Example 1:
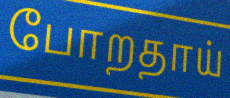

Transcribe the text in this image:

போறதாய்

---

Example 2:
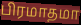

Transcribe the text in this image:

பிரமாதமா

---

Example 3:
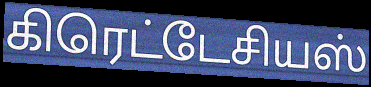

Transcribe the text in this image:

கிரெட்டேசியஸ்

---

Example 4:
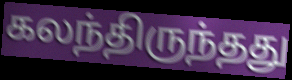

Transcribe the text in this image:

கலந்திருந்தது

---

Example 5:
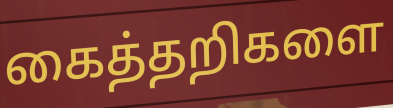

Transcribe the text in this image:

கைத்தறிகளை